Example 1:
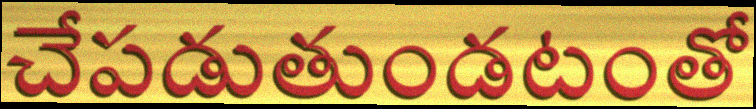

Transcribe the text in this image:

చేపడుతుండటంతో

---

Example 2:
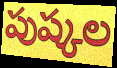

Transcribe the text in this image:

పుష్కల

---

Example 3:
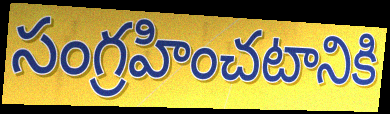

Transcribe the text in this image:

సంగ్రహించటానికి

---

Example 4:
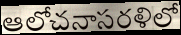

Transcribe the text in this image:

ఆలోచనాసరళిలో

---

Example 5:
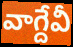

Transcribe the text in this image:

వాగ్దేవీ